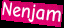
Nenjam